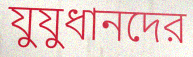
যুযুধানদের